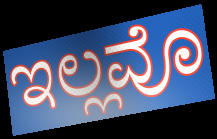
ಇಲ್ಲವೊ